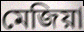
মেজিয়া